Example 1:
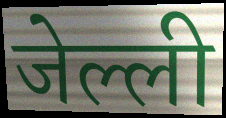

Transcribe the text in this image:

जेल्ली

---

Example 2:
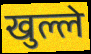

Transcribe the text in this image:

खुल्ले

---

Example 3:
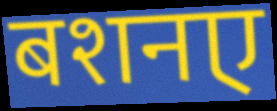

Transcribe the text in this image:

बशनए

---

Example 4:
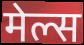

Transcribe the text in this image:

मेल्स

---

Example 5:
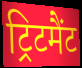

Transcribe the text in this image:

ट्रिटमैंट